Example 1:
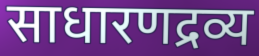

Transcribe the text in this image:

साधारणद्रव्य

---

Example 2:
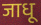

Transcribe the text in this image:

जाधू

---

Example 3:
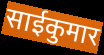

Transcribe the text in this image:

साईकुमार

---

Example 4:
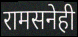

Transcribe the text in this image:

रामसनेही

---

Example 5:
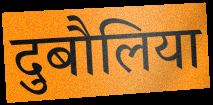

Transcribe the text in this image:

दुबौलिया